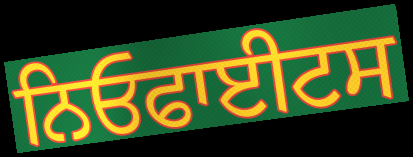
ਨਿਓਫਾਈਟਸ